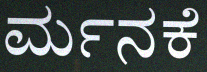
ರ್ಮನಕೆ